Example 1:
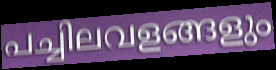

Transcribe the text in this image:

പച്ചിലവളങ്ങളും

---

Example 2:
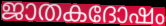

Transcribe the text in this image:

ജാതകദോഷം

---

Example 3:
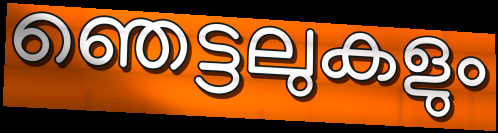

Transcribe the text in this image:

ഞെട്ടലുകളും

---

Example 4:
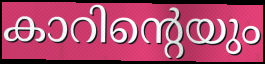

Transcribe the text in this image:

കാറിന്റെയും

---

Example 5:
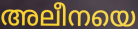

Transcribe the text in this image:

അലീനയെ